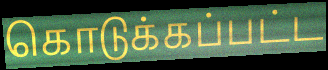
கொடுக்கப்பட்ட